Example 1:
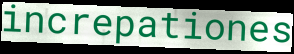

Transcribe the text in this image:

increpationes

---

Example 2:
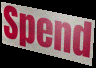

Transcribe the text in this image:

Spend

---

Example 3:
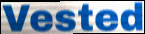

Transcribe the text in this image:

Vested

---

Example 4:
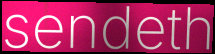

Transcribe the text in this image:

sendeth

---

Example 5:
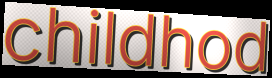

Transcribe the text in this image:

childhod